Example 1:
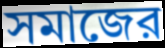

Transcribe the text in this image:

সমাজের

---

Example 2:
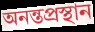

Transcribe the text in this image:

অনন্তপ্রস্থান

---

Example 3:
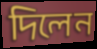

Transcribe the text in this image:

দিলেন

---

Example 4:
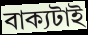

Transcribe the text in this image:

বাক্যটাই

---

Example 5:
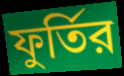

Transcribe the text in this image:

ফুর্তির